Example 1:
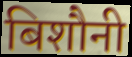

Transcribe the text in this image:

बिशौनी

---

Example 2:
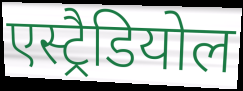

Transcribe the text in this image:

एस्ट्रैडियोल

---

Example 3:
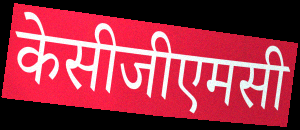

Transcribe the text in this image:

केसीजीएमसी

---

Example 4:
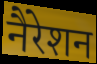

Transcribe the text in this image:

नैरेशन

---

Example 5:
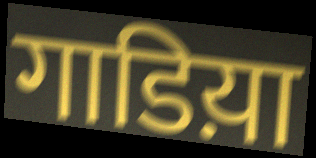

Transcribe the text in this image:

गाडिय़ा